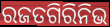
ରଜତଗିରିନିଭ